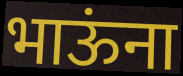
भाऊंना